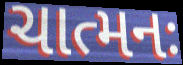
ચાત્મનઃ